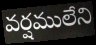
వర్షములేని